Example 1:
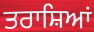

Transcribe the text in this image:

ਤਰਾਸ਼ਿਆਂ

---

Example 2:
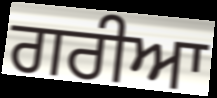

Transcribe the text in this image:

ਗਰੀਆ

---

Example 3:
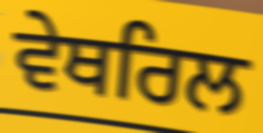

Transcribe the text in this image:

ਵੇਥਰਿਲ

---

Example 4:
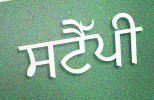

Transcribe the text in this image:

ਸਟੈੱਪੀ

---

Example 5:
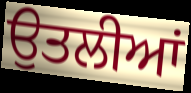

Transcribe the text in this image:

ਉਤਲੀਆਂ